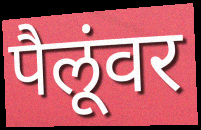
पैलूंवर